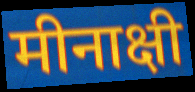
मीनाक्षी